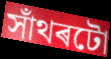
সাঁথৰটো